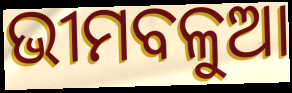
ଭୀମବଳୁଆ